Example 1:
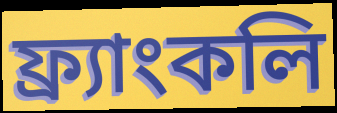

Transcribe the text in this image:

ফ্র্যাংকলি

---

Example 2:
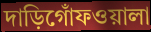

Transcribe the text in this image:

দাড়িগোঁফওয়ালা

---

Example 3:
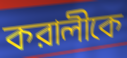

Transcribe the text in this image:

করালীকে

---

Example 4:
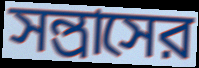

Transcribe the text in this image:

সন্ত্রাসের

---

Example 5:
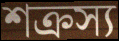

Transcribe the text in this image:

শক্রস্য